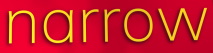
narrow